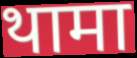
थामा